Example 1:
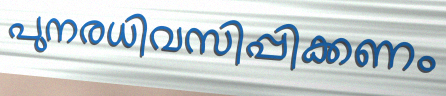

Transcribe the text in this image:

പുനരധിവസിപ്പിക്കണം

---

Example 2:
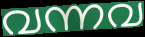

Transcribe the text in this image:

വന്നവ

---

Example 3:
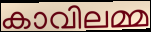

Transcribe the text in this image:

കാവിലമ്മ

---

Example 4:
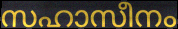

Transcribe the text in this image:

സഹാസീനം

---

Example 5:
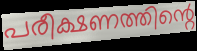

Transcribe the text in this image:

പരീക്ഷണത്തിന്റെ